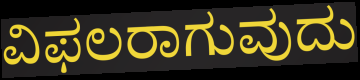
ವಿಫಲರಾಗುವುದು